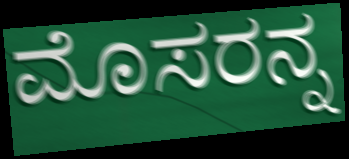
ಮೊಸರನ್ನ